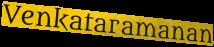
Venkataramanan